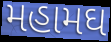
મહામઘ